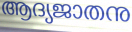
ആദ്യജാതനു